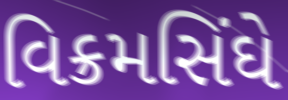
વિક્રમસિંઘે